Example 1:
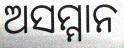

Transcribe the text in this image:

ଅସମ୍ମାନ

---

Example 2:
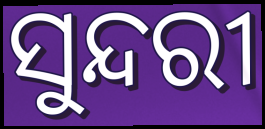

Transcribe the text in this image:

ସୁନ୍ଦରୀ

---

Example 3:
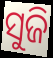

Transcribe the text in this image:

ସୁଜି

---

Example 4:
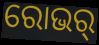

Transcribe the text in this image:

ରୋଭର୍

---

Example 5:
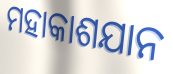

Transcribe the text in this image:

ମହାକାଶଯାନ